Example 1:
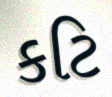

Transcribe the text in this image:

કટિ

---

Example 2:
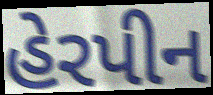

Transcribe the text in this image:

હેરપીન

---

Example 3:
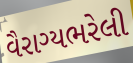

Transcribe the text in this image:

વૈરાગ્યભરેલી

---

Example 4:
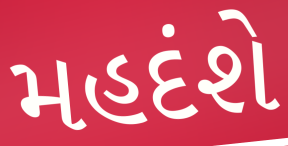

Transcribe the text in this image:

મહદંશે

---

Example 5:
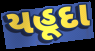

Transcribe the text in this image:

યહૂદા